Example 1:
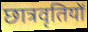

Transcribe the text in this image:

छात्रवृतियों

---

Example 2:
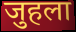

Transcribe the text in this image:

जुहला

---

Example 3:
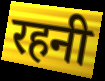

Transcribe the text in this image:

रहनी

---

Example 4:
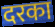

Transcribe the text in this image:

दरका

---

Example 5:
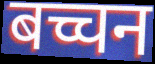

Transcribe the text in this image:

बच्चन